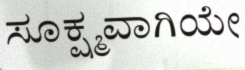
ಸೂಕ್ಷ್ಮವಾಗಿಯೇ